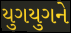
યુગયુગને